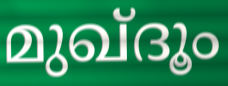
മുഖ്ദൂം